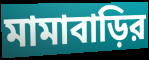
মামাবাড়ির